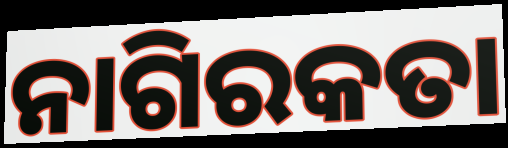
ନାଗିରକତା